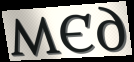
MEd